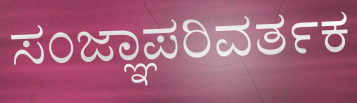
ಸಂಜ್ಞಾಪರಿವರ್ತಕ